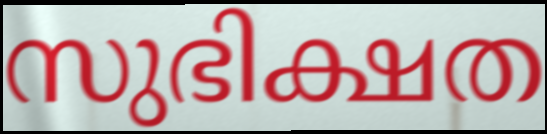
സുഭിക്ഷത